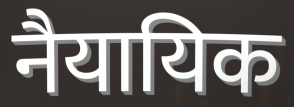
नैयायिक